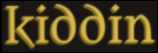
kiddin